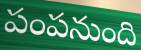
పంపనుంది